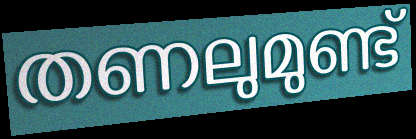
തണലുമുണ്ട്